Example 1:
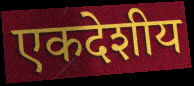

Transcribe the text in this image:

एकदेशीय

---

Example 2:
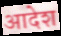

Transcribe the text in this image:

आदेश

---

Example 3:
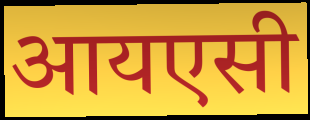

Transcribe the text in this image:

आयएसी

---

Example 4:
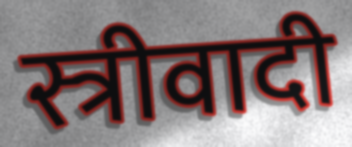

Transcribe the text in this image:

स्त्रीवादी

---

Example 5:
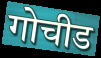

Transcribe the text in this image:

गोचीड